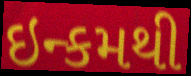
ઇન્કમથી